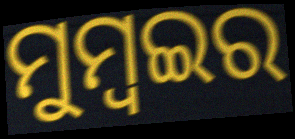
ମୁମ୍ବଇର